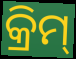
କ୍ରିମ୍